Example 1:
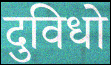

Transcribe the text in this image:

दुविधो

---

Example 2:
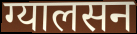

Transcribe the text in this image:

ग्यालसन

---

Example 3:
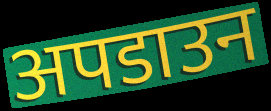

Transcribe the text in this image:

अपडाउन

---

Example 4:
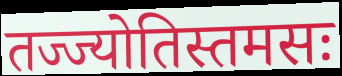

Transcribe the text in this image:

तज्ज्योतिस्तमसः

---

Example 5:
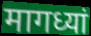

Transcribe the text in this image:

मागध्यां